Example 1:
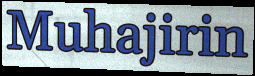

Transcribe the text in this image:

Muhajirin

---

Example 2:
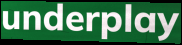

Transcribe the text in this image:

underplay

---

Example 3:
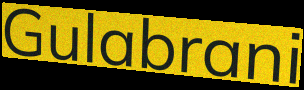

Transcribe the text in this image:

Gulabrani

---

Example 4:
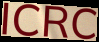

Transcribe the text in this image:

ICRC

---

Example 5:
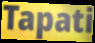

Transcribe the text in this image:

Tapati